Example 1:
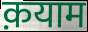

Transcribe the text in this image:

क़याम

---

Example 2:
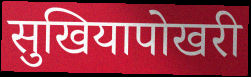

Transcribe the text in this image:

सुखियापोखरी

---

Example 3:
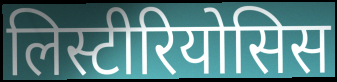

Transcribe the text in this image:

लिस्टीरियोसिस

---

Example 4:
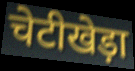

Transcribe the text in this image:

चेटीखेड़ा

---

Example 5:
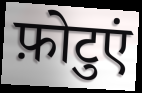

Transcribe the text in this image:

फ़ोटुएं